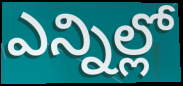
ఎన్నిల్లో